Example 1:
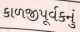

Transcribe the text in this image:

કાળજીપૂર્વકનું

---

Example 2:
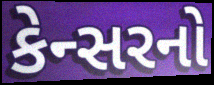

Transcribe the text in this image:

કેન્સરનો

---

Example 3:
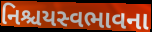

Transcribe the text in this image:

નિશ્ચયસ્વભાવના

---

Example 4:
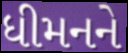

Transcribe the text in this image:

ધીમનને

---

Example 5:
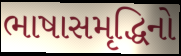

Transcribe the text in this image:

ભાષાસમૃદ્ધિનો